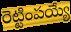
రెట్టింపయ్యే